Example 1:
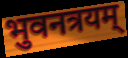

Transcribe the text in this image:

भुवनत्रयम्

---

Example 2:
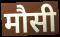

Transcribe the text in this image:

मौसी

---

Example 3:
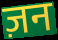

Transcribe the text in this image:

ज़न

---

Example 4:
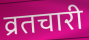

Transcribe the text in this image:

व्रतचारी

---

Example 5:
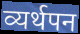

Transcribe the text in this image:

व्यर्थपन